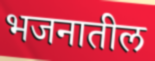
भजनातील